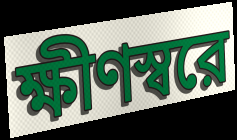
ক্ষীণস্বরে